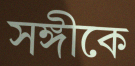
সঙ্গীকে